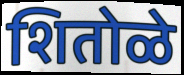
शितोळे